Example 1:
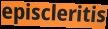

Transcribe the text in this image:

episcleritis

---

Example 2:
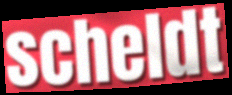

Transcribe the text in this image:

scheldt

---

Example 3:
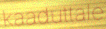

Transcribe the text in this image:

kaaduttale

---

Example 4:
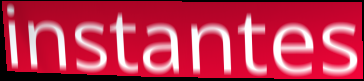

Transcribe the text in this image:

instantes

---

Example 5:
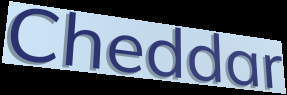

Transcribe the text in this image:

Cheddar